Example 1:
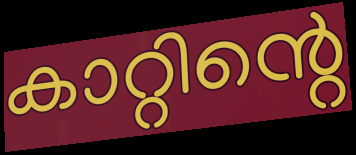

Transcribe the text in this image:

കാറ്റിന്റെ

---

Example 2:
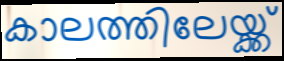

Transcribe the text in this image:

കാലത്തിലേയ്ക്ക്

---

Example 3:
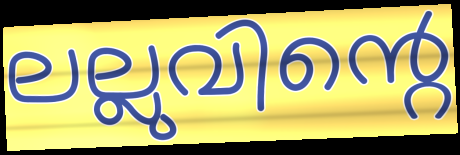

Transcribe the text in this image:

ലല്ലുവിന്റെ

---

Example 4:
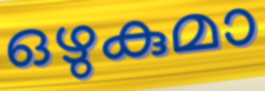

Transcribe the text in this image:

ഒഴുകുമാ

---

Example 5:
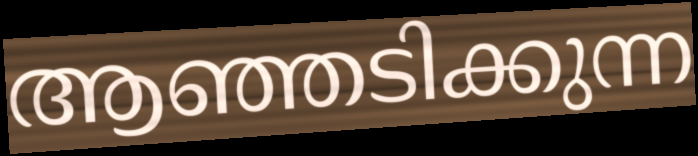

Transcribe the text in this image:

ആഞ്ഞടിക്കുന്ന